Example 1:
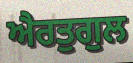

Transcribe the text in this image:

ਐਰਤੁਗੁਲ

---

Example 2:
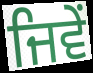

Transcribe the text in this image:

ਜਿਵੇੰ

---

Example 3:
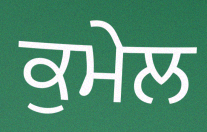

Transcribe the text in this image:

ਕੁਮੇਲ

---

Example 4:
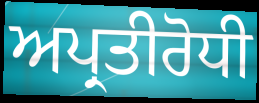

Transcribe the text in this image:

ਅਪ੍ਰਤੀਰੋਧੀ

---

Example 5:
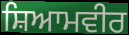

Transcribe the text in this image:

ਸ਼ਿਆਮਵੀਰ